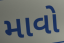
માવો